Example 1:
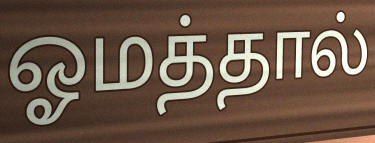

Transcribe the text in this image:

ஓமத்தால்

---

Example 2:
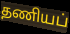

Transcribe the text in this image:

தணியப்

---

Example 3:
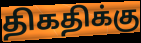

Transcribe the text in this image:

திகதிக்கு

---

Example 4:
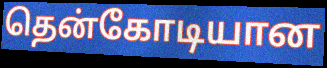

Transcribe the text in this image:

தென்கோடியான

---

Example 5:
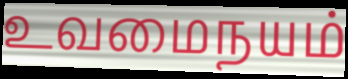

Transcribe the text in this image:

உவமைநயம்